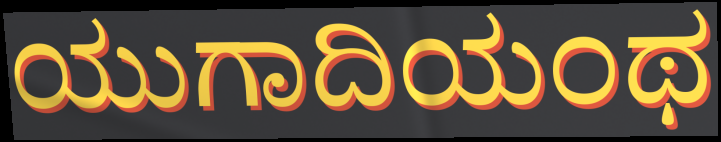
ಯುಗಾದಿಯಂಥ